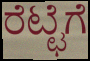
ರೆಟ್ಟೆಗೆ